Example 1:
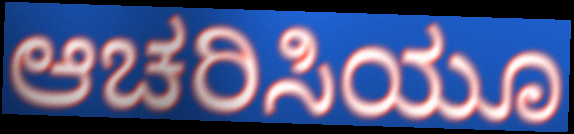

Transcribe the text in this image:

ಆಚರಿಸಿಯೂ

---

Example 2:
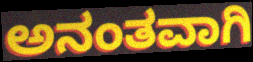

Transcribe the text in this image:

ಅನಂತವಾಗಿ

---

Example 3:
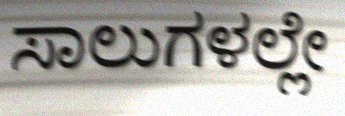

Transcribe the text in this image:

ಸಾಲುಗಳಲ್ಲೇ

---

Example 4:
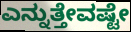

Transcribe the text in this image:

ಎನ್ನುತ್ತೇವಷ್ಟೇ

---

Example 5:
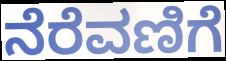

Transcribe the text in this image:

ನೆರೆವಣಿಗೆ